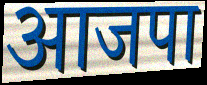
आजपा